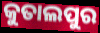
କୁତାଲପୁର